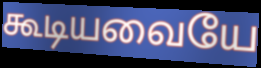
கூடியவையே